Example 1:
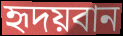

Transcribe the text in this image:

হৃদয়বান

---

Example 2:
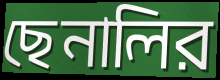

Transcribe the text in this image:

ছেনালির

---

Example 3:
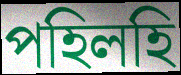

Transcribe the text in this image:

পহিলহি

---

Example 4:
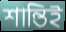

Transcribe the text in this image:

শান্তিই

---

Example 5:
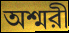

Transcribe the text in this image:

অশ্মরী